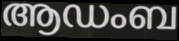
ആഡംബ